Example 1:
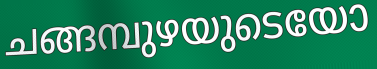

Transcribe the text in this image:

ചങ്ങമ്പുഴയുടെയോ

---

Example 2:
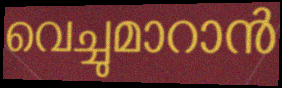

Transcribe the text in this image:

വെച്ചുമാറാൻ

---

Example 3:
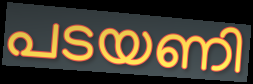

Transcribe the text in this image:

പടയണി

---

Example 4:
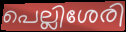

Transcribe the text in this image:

പെല്ലിശേരി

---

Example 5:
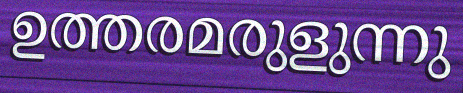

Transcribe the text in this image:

ഉത്തരമരുളുന്നു